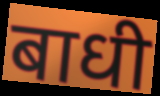
बाधी